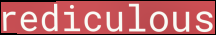
rediculous